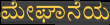
ಮೇಘಾನೆಯ